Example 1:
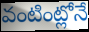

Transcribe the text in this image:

వంటింట్లోనే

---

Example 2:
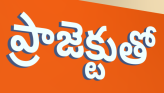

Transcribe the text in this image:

ప్రాజెక్టుతో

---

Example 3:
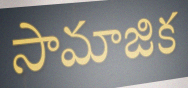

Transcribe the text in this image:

సామాజిక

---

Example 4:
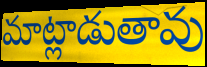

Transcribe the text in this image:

మాట్లాడుతావు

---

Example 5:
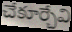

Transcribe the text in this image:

చేకూర్చేవి